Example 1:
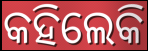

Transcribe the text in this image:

କହିଲେକି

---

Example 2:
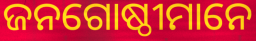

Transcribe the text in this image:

ଜନଗୋଷ୍ଠୀମାନେ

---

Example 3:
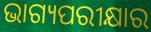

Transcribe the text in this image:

ଭାଗ୍ୟପରୀକ୍ଷାର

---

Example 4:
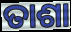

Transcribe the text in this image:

ତାଶା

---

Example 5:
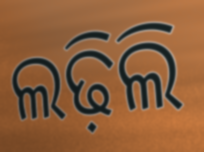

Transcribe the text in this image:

ଲଢ଼ିଲି